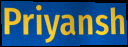
Priyansh